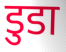
डुडा